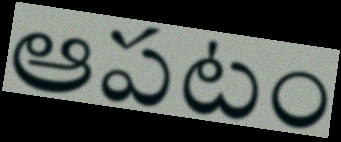
ఆపటం